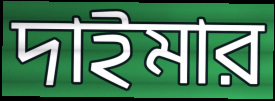
দাইমার